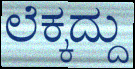
ಲೆಕ್ಕದ್ದು